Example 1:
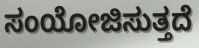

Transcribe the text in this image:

ಸಂಯೋಜಿಸುತ್ತದೆ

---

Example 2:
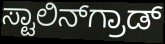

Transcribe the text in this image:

ಸ್ಟಾಲಿನ್‌ಗ್ರಾಡ್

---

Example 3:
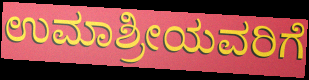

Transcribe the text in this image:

ಉಮಾಶ್ರೀಯವರಿಗೆ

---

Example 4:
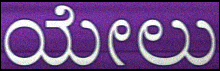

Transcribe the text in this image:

ಯೇಲು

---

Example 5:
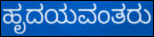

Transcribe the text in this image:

ಹೃದಯವಂತರು